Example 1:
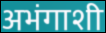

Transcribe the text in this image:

अभंगाशी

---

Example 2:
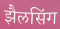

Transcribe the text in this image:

झैलसिंग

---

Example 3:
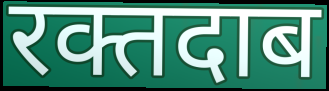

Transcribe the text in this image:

रक्तदाब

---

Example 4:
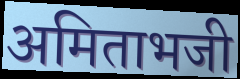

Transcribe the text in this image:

अमिताभजी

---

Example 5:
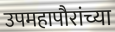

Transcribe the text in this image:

उपमहापौरांच्या